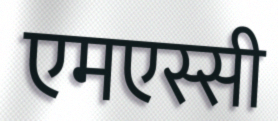
एमएस्सी